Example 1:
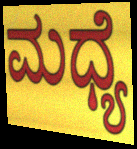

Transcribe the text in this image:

ಮಧ್ಯೆ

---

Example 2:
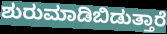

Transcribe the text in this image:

ಶುರುಮಾಡಿಬಿಡುತ್ತಾರೆ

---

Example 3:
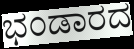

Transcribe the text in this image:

ಭಂಡಾರದ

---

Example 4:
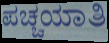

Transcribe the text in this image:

ಪಚ್ಚಯಾತಿ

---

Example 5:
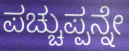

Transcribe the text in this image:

ಪಚ್ಚುಪ್ಪನ್ನೇ